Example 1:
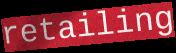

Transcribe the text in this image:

retailing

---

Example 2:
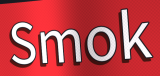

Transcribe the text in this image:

Smok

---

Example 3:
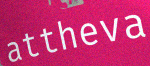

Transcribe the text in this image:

attheva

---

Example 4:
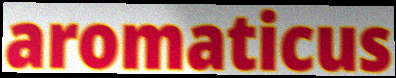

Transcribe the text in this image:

aromaticus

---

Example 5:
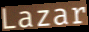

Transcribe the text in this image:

Lazar